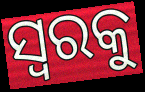
ସ୍ୱରକୁ